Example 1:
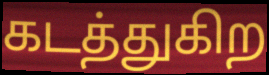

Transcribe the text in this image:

கடத்துகிற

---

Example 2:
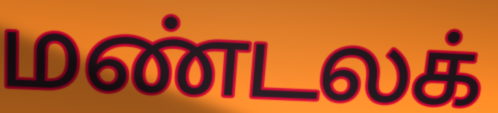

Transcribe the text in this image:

மண்டலக்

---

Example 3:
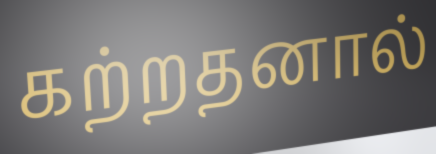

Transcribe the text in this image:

கற்றதனால்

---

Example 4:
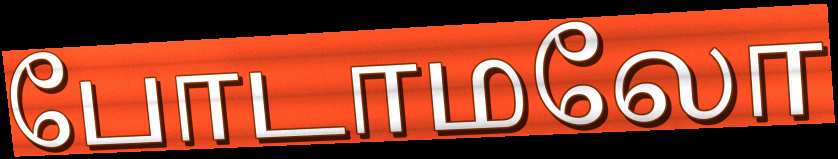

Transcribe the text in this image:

போடாமலோ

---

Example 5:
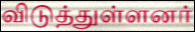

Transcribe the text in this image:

விடுத்துள்ளனர்